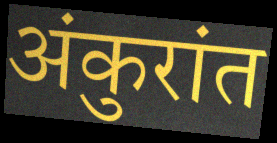
अंकुरांत